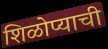
शिळोप्याची